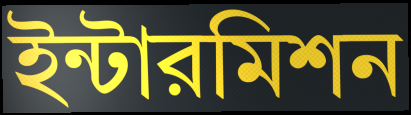
ইন্টারমিশন